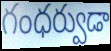
గంధర్వుడా